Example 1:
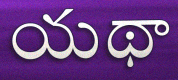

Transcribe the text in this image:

యథా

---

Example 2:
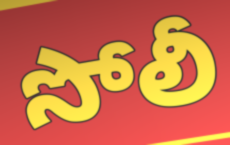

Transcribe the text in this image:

సోలీ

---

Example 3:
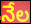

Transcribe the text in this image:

నేల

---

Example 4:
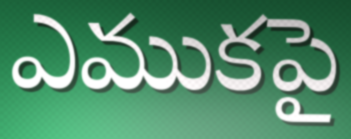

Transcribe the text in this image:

ఎముకపై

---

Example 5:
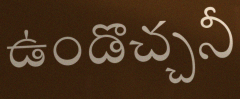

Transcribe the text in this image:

ఉండొచ్చనీ